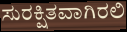
ಸುರಕ್ಷಿತವಾಗಿರಲಿ